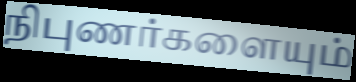
நிபுணர்களையும்